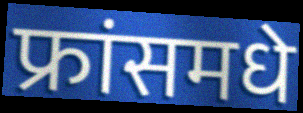
फ्रांसमधे